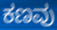
ಕಣವು